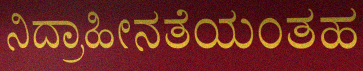
ನಿದ್ರಾಹೀನತೆಯಂತಹ